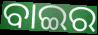
ବାଇର